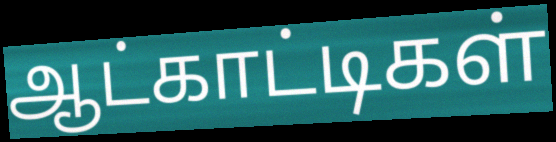
ஆட்காட்டிகள்